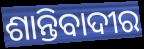
ଶାନ୍ତିବାଦୀର